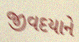
જીવદયાને